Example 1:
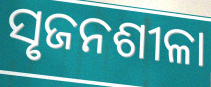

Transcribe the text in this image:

ସୃଜନଶୀଳା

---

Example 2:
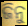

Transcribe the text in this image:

ଜିନୁ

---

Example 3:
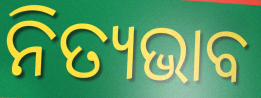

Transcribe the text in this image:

ନିତ୍ୟଭାବ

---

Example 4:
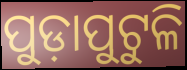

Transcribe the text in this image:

ପୁଡ଼ାପୁଟୁଳି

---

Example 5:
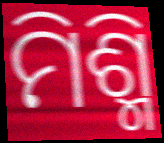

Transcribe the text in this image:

ମିଶ୍ମି